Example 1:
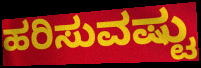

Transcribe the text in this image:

ಹರಿಸುವಷ್ಟು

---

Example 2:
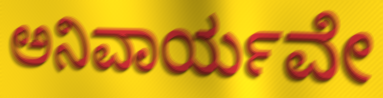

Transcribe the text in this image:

ಅನಿವಾರ್ಯವೇ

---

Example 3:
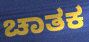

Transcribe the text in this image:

ಚಾತಕ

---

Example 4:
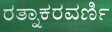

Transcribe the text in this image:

ರತ್ನಾಕರವರ್ಣಿ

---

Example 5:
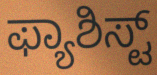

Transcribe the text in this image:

ಫ್ಯಾಶಿಸ್ಟ್